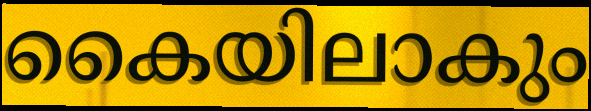
കൈയിലാകും